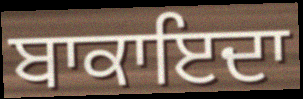
ਬਾਕਾਇਦਾ